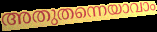
അതുതന്നെയാവാം